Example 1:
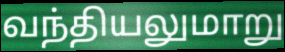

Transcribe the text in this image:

வந்தியலுமாறு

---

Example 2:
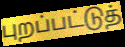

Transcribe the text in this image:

புறப்பட்டுத்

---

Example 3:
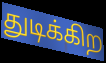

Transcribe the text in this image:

துடிக்கிற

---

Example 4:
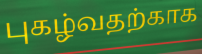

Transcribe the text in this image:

புகழ்வதற்காக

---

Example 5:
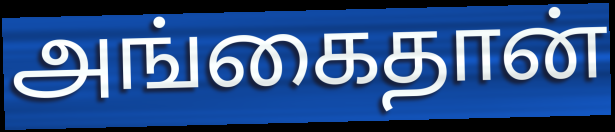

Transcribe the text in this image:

அங்கைதான்